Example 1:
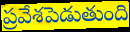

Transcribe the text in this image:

ప్రవేశపెడుతుంది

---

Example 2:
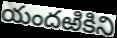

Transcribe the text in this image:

యందఱికిని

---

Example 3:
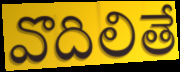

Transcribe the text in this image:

వొదిలితే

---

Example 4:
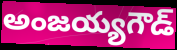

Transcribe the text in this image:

అంజయ్యగౌడ్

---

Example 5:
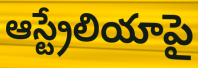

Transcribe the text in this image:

ఆస్ట్రేలియాపై